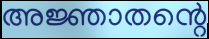
അജ്ഞാതന്റെ